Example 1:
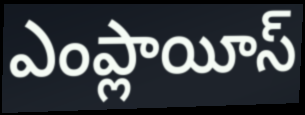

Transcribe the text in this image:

ఎంప్లాయీస్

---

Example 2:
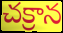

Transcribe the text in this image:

చక్రాన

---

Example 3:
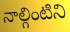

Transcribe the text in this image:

నాల్గింటిని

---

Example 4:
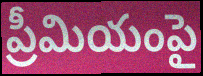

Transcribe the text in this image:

ప్రీమియంపై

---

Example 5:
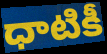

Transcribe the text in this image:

ధాటికీ